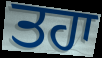
ਤਹਾ